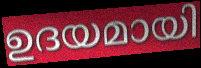
ഉദയമായി